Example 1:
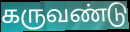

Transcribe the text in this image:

கருவண்டு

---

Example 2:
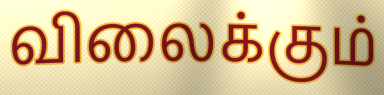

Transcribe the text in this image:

விலைக்கும்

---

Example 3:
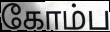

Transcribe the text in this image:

கோம்ப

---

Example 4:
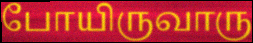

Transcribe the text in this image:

போயிருவாரு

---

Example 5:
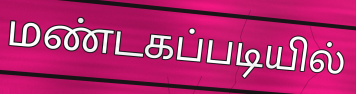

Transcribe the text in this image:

மண்டகப்படியில்